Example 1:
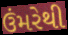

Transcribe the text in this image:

ઉંમરેથી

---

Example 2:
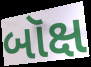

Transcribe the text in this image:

બૉક્ષ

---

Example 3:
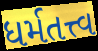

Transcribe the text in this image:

ધર્મતત્ત્વ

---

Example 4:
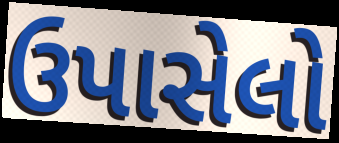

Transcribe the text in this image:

ઉપાસેલો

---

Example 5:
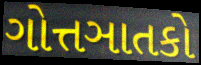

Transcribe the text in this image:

ગોત્તઞાતકો